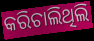
କରିଚାଲିଥିଲି